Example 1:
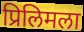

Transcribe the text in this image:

प्रिलिमला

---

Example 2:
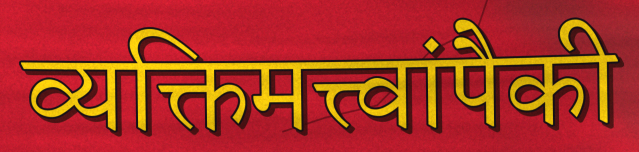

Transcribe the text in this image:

व्यक्तिमत्त्वांपैकी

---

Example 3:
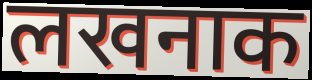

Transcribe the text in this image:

लखनाक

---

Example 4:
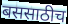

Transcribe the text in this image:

बससाठीच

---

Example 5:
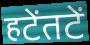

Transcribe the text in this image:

हटेंतटें